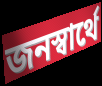
জনস্বার্থে